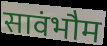
सावंभौम